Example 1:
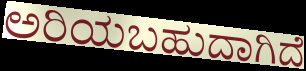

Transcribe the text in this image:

ಅರಿಯಬಹುದಾಗಿದೆ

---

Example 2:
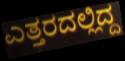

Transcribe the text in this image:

ಎತ್ತರದಲ್ಲಿದ್ದ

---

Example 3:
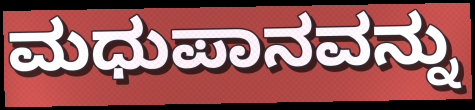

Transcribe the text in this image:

ಮಧುಪಾನವನ್ನು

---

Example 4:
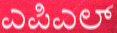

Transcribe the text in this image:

ಎಪಿಎಲ್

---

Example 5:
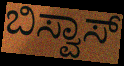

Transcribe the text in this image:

ಬಿಸ್ವಾಸ್